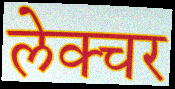
लेक्चर